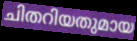
ചിതറിയതുമായ